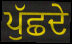
ਪੁੱਛਦੇ